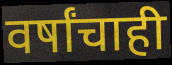
वर्षांचाही